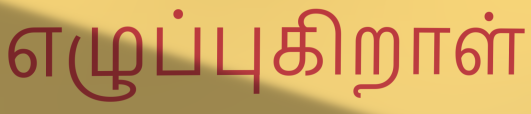
எழுப்புகிறாள்